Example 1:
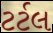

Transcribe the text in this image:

ટર્ટલ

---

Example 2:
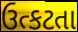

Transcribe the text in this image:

ઉત્કટતા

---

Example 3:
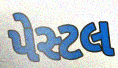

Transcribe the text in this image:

પેસ્ટલ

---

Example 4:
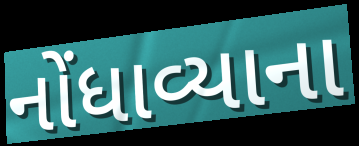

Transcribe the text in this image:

નોંધાવ્યાના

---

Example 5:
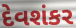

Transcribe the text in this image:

દેવશંકર